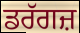
ਡਰੱਗਜ਼